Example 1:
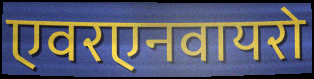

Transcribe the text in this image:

एवरएनवायरो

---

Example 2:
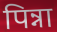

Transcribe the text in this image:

पिन्ना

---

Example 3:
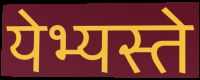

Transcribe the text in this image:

येभ्यस्ते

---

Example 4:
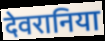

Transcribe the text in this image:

देवरानिया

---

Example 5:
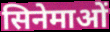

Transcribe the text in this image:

सिनेमाओं